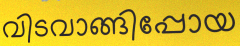
വിടവാങ്ങിപ്പോയ